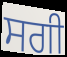
ਸਗੀ